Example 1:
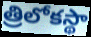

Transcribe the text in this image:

త్రిలోకస్థా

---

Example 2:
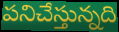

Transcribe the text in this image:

పనిచేస్తున్నది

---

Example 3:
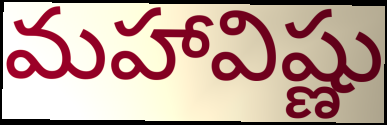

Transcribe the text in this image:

మహావిష్ణు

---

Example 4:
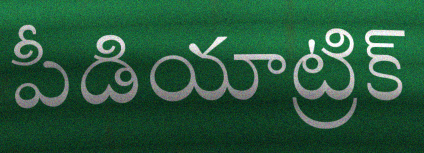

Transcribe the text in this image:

పీడియాట్రిక్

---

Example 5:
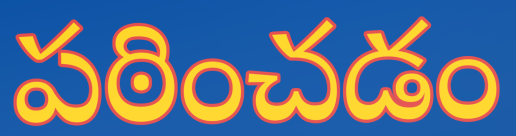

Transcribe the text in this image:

పఠించడం